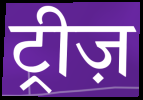
ट्रीज़